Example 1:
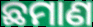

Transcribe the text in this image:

ଛମାଣ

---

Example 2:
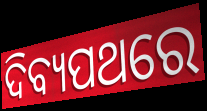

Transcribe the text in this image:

ଦିବ୍ୟପଥରେ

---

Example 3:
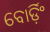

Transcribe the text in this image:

ବୋର୍ଡ଼ିଂ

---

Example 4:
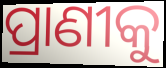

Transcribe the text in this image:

ପ୍ରାଣୀକୁ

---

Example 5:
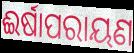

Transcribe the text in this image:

ଈର୍ଷାପରାୟଣ